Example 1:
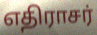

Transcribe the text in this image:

எதிராசர்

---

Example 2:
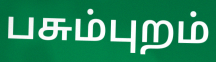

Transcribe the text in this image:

பசும்புறம்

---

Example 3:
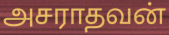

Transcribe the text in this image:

அசராதவன்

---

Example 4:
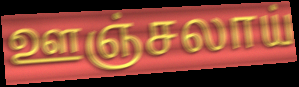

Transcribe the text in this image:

ஊஞ்சலாய்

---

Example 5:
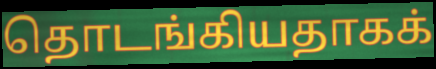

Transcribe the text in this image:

தொடங்கியதாகக்